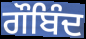
ਗੌਬਿੰਦ